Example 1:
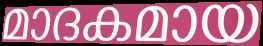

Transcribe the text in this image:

മാദകമായ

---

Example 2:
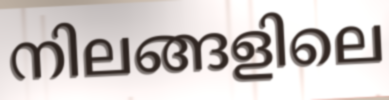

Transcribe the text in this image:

നിലങ്ങളിലെ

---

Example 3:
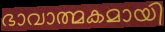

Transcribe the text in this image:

ഭാവാത്മകമായി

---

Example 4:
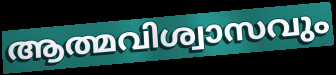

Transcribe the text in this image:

ആത്മവിശ്വാസവും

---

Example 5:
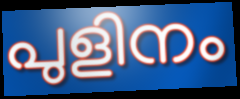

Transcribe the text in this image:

പുളിനം